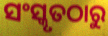
ସଂସ୍କୃତଠାରୁ